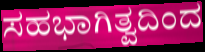
ಸಹಭಾಗಿತ್ವದಿಂದ